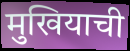
मुखियाची